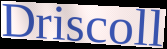
Driscoll